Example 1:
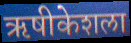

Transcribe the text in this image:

ऋषीकेशला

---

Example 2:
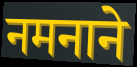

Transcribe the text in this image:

नमनाने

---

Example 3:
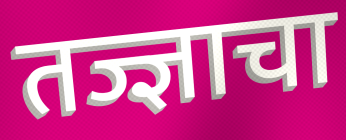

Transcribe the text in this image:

तज्ज्ञाचा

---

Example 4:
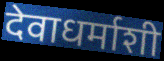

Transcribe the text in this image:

देवाधर्माशी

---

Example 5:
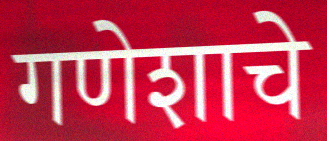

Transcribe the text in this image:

गणेशाचे